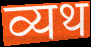
व्यथ